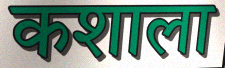
कशाला